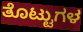
ತೊಟ್ಟುಗಳ